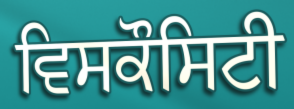
ਵਿਸਕੌਸਿਟੀ